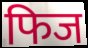
फिज